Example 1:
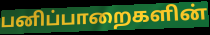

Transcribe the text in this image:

பனிப்பாறைகளின்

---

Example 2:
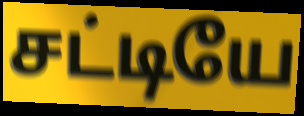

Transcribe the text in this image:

சட்டியே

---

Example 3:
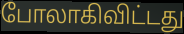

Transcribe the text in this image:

போலாகிவிட்டது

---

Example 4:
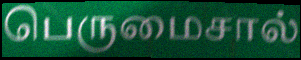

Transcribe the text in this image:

பெருமைசால்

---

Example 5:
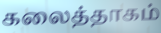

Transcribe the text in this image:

கலைத்தாகம்